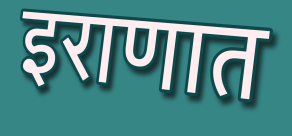
इराणात